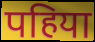
पहिया